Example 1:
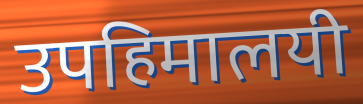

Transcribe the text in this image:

उपहिमालयी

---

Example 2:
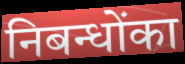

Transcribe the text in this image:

निबन्धोंका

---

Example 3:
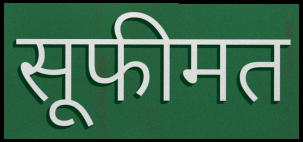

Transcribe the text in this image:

सूफीमत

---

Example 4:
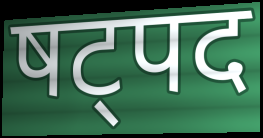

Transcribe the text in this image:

षट्पद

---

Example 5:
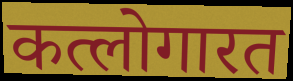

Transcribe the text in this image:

कत्लोगारत